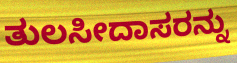
ತುಲಸೀದಾಸರನ್ನು